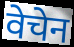
वेचेन